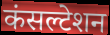
कंसल्टेशन